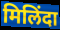
मिलिंदा